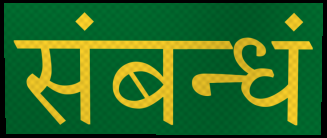
संबन्धं